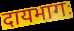
दायभागः